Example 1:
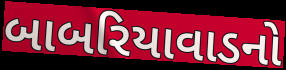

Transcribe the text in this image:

બાબરિયાવાડનો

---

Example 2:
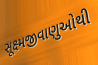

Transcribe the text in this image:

સૂક્ષ્મજીવાણુઓથી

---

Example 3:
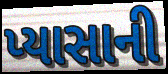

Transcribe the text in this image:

પ્યાસાની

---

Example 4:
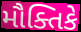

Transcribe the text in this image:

મૌક્તિકે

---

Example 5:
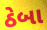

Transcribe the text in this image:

ઠેબા